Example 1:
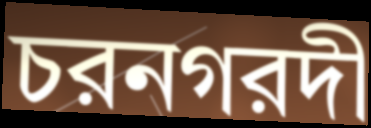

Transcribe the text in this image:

চরনগরদী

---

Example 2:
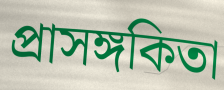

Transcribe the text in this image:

প্রাসঙ্গকিতা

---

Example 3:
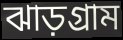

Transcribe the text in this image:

ঝাড়গ্রাম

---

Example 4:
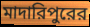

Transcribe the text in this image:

মাদারিপুরের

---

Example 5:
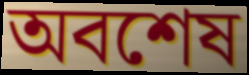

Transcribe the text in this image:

অবশেষ